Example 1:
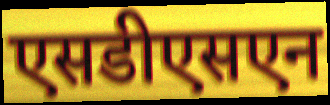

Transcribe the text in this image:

एसडीएसएन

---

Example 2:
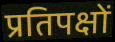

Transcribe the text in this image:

प्रतिपक्षों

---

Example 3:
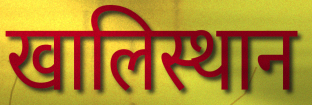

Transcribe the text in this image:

खालिस्थान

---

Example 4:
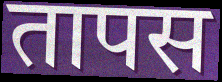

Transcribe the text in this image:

तापस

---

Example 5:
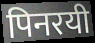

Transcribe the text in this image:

पिनरयी